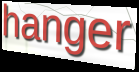
hanger